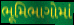
ભૂમિભાગોમાં